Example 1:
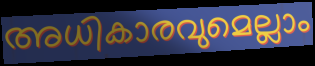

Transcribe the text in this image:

അധികാരവുമെല്ലാം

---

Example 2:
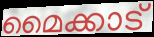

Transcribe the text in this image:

മൈക്കാട്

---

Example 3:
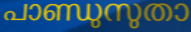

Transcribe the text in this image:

പാണ്ഡുസുതാ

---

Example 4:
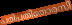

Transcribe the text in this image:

പരിപതിതോരസി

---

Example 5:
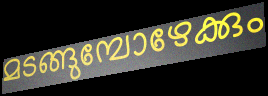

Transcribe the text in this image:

മടങ്ങുമ്പോഴേക്കും